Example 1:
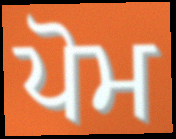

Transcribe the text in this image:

ਪੋਮ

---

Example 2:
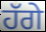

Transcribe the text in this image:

ਹੱਗੇ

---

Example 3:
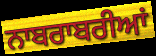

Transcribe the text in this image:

ਨਾਬਰਾਬਰੀਆਂ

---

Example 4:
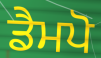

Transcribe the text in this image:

ਡੈਮਪੋ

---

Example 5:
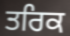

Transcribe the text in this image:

ਤਰਿਕ